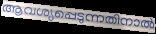
ആവശ്യപ്പെടുന്നതിനാൽ